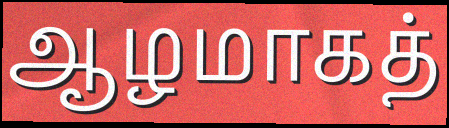
ஆழமாகத்